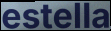
estella